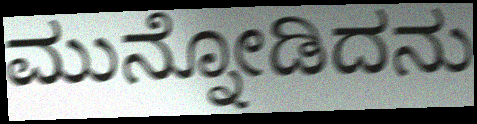
ಮುನ್ನೋಡಿದನು